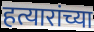
हत्यारांच्या